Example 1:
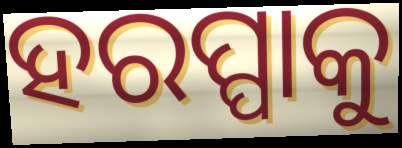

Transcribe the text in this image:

ହରପ୍ପାକୁ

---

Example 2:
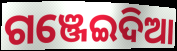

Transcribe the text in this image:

ଗଞ୍ଜେଇଦିଆ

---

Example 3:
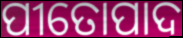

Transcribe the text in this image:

ପୀତୋପାଦ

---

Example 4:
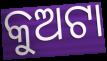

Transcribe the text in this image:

କୁଅଟା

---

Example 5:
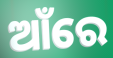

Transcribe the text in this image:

ଆଁରେ